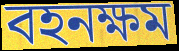
বহনক্ষম